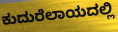
ಕುದುರೆಲಾಯದಲ್ಲಿ